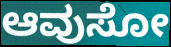
ಆವುಸೋ